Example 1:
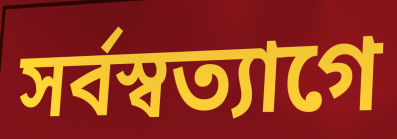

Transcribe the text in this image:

সর্বস্বত্যাগে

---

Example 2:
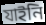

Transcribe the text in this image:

যাইনি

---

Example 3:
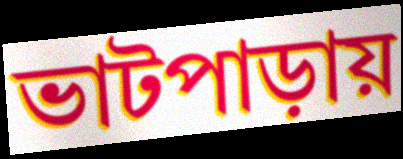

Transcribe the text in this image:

ভাটপাড়ায়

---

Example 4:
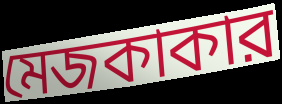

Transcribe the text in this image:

মেজকাকার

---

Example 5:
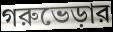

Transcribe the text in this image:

গরুভেড়ার